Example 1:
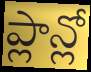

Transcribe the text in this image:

ప్లాన్లో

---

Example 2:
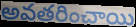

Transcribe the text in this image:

అవతరించాయి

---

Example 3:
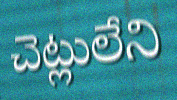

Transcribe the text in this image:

చెట్లులేని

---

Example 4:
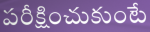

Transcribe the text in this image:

పరీక్షించుకుంటే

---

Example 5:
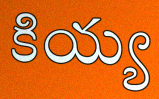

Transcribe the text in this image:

కియ్య